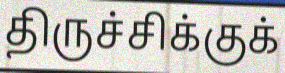
திருச்சிக்குக்